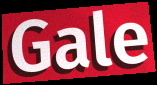
Gale